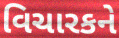
વિચારકને